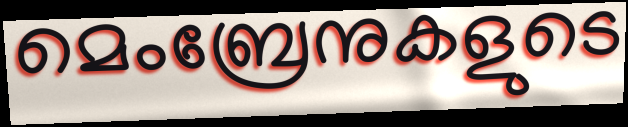
മെംബ്രേനുകളുടെ